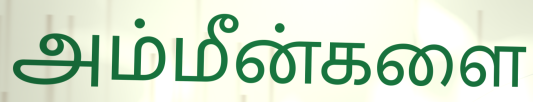
அம்மீன்களை